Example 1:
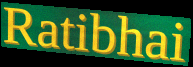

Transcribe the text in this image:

Ratibhai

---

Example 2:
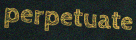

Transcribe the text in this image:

perpetuate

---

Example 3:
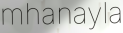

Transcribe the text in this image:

mhanayla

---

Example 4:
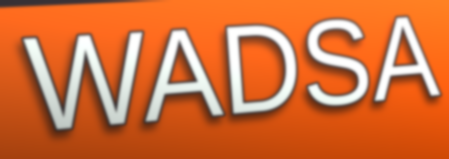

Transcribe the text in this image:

WADSA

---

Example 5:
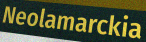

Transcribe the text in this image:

Neolamarckia